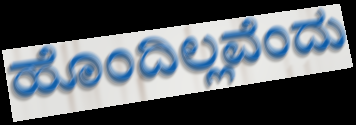
ಹೊಂದಿಲ್ಲವೆಂದು